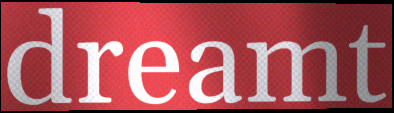
dreamt